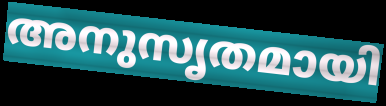
അനുസൃതമായി